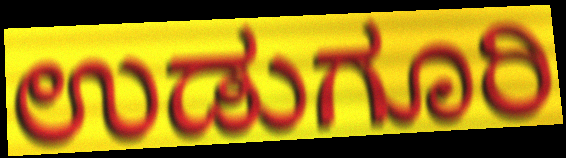
ಉಡುಗೂರಿ